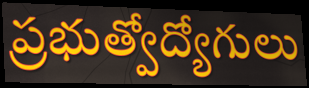
ప్రభుత్వోద్యోగులు